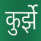
कुर्झे